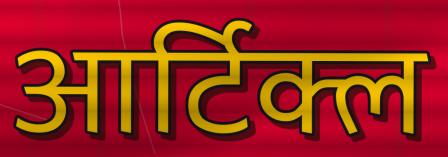
आर्टिक्ल